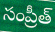
సంప్రీత్